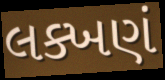
લક્ખણં